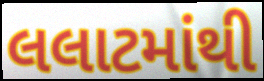
લલાટમાંથી